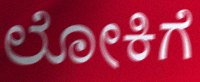
ಲೋಕಿಗೆ